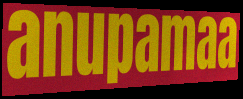
anupamaa